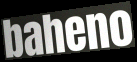
baheno